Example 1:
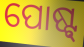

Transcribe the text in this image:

ପୋଷ୍ଟ୍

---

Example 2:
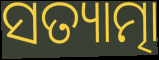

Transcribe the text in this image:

ସତ୍ୟାତ୍ମା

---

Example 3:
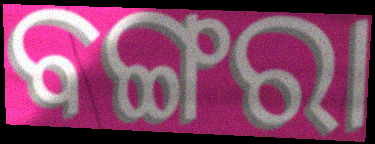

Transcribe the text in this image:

ବଙ୍ଗରା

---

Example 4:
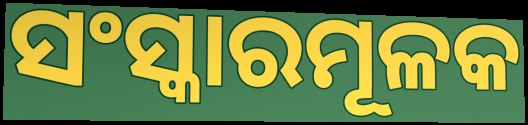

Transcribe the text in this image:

ସଂସ୍କାରମୂଳକ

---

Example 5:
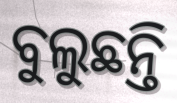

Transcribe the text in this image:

ବୁଲୁଛନ୍ତି